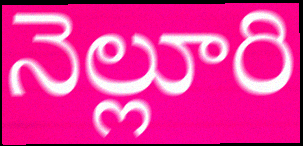
నెల్లూరి